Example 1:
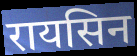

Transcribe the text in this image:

रायसिन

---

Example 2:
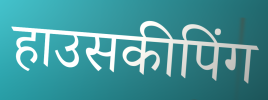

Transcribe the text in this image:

हाउसकीपिंग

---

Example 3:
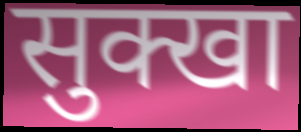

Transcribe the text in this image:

सुक्खा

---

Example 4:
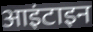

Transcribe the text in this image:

आइंटाइन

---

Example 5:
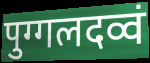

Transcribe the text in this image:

पुग्गलदव्वं